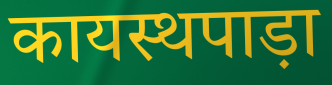
कायस्थपाड़ा